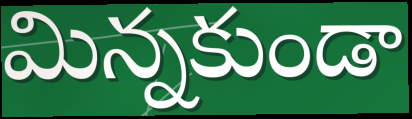
మిన్నకుండా